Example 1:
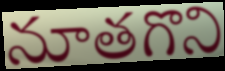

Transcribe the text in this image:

నూతగొని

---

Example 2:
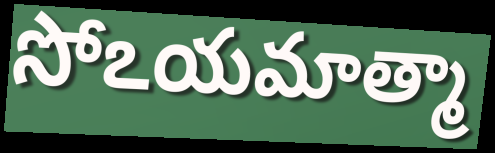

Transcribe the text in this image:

సోఽయమాత్మా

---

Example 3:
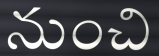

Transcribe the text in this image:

నుంచి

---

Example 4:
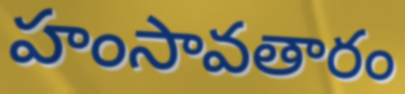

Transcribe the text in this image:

హంసావతారం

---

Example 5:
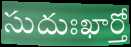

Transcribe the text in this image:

సుదుఃఖార్తో